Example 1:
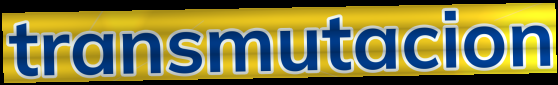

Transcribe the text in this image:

transmutacion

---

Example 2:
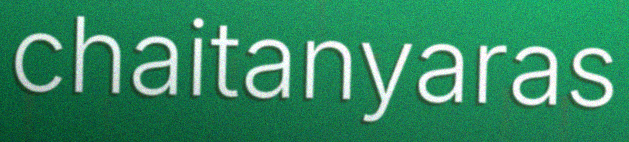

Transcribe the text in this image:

chaitanyaras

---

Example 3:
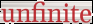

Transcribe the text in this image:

unfinite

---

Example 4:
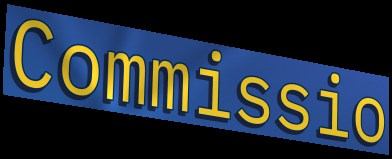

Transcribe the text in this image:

Commissio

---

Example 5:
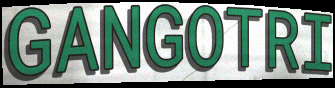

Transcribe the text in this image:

GANGOTRI